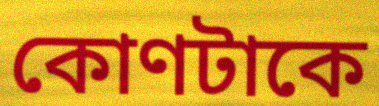
কোণটাকে